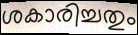
ശകാരിച്ചതും